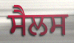
ਸੈਲਸ